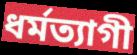
ধর্মত্যাগী